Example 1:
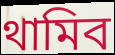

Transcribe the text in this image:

থামিব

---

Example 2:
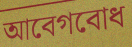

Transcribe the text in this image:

আবেগবোধ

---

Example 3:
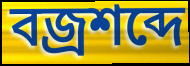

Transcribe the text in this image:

বজ্রশব্দে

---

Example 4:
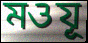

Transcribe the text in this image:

মওযূ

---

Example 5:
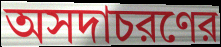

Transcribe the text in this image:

অসদাচরণের